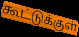
கூட்டுக்குள்